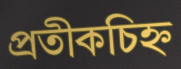
প্ৰতীকচিহ্ন